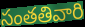
సంతతివారి